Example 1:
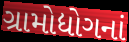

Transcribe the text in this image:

ગ્રામોદ્યોગનાં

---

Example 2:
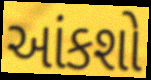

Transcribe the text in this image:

આંકશો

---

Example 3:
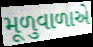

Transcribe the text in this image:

મૂળુવાળાએ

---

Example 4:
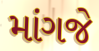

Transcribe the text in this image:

માંગજે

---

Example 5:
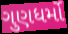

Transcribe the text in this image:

ગુણધર્મો